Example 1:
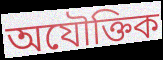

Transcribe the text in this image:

অযৌক্তিক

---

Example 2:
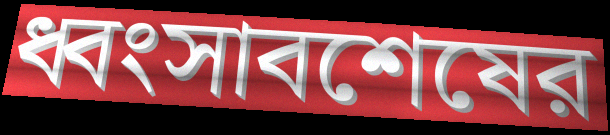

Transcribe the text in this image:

ধ্বংসাবশেষের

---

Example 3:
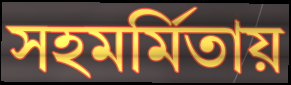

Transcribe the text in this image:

সহমর্মিতায়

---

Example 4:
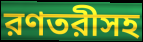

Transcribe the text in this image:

রণতরীসহ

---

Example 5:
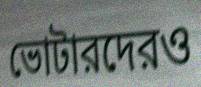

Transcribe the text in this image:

ভোটারদেরও